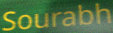
Sourabh